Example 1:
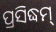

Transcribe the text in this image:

ପ୍ରସିଦ୍ଧମ୍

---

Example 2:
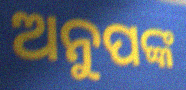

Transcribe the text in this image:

ଅନୁପଙ୍କ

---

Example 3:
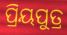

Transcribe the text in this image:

ପ୍ରିୟପୁତ୍ର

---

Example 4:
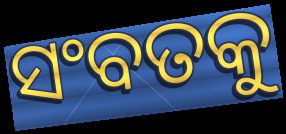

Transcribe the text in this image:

ସଂବତକୁ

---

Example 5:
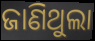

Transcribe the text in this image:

ଜାଣିଥୁଲା